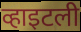
व्हाइटली